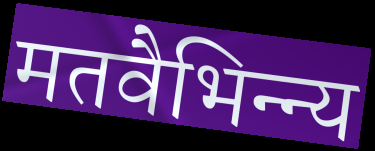
मतवैभिन्न्य